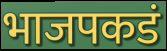
भाजपकडं